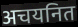
अचयनित